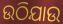
ଉଠିଯାଉ